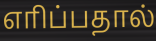
எரிப்பதால்